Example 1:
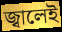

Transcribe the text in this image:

জ্বালেই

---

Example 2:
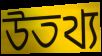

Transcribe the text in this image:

উতথ্য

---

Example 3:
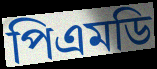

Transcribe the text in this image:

পিএমডি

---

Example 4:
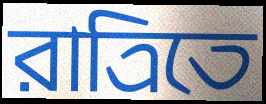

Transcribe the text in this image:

রাত্রিতে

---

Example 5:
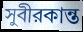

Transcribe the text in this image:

সুবীরকান্ত